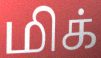
மிக்